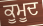
ਕੂਮੂਦ